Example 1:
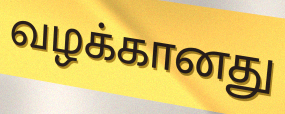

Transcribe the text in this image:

வழக்கானது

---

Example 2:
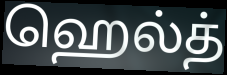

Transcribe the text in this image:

ஹெல்த்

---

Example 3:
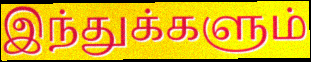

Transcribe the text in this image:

இந்துக்களும்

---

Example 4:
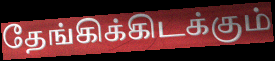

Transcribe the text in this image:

தேங்கிக்கிடக்கும்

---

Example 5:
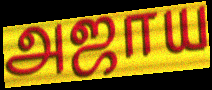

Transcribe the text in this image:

அஜாய